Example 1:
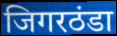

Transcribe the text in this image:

जिगरठंडा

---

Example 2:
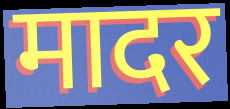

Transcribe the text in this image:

मादर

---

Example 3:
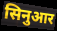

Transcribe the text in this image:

सिनुआर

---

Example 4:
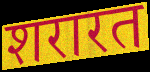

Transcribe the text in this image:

शरारत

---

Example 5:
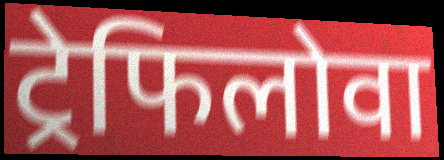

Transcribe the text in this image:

ट्रेफिलोवा